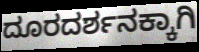
ದೂರದರ್ಶನಕ್ಕಾಗಿ